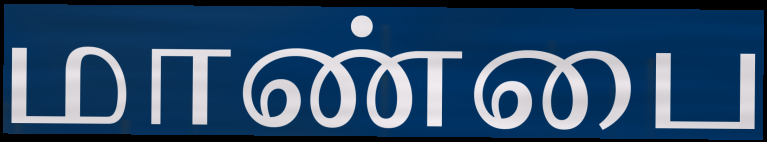
மாண்பை